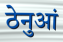
ठेनुआं